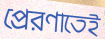
প্রেরণাতেই